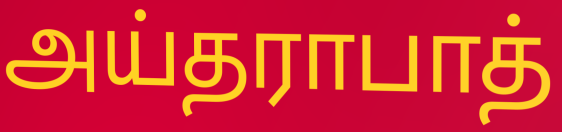
அய்தராபாத்